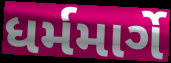
ધર્મમાર્ગે